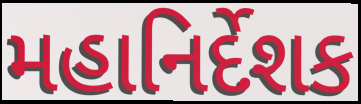
મહાનિર્દેશક